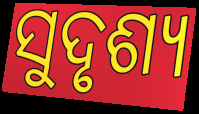
ସୁଦୃଶ୍ୟ